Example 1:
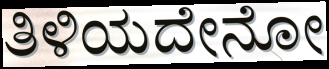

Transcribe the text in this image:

ತಿಳಿಯದೇನೋ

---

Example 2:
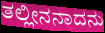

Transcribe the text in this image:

ತಲ್ಲೀನನಾದನು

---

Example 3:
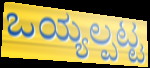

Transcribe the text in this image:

ಒಯ್ಯಲ್ಪಟ್ಟ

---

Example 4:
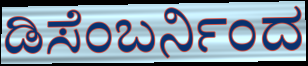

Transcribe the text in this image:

ಡಿಸೆಂಬರ್ನಿಂದ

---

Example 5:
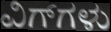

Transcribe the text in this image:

ವಿಗ್‌ಗಳು